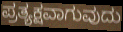
ಪ್ರತ್ಯಕ್ಷವಾಗುವುದು